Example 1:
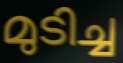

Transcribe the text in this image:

മുടിച്ച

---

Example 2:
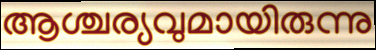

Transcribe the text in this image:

ആശ്ചര്യവുമായിരുന്നു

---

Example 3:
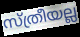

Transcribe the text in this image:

സ്ത്രീയല്ല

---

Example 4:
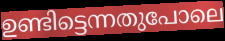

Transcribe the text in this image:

ഉണ്ടിട്ടെന്നതുപോലെ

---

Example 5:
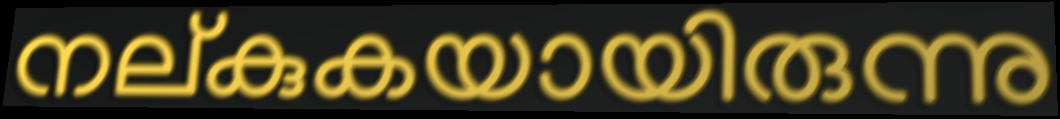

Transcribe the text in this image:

നല്കുകയായിരുന്നു